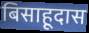
बिसाहूदास